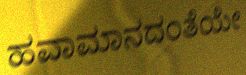
ಹವಾಮಾನದಂತೆಯೇ